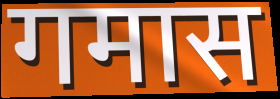
गमास